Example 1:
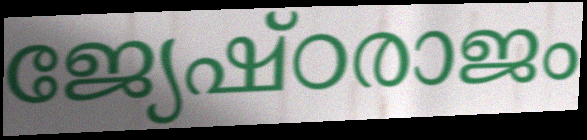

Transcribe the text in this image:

ജ്യേഷ്ഠരാജം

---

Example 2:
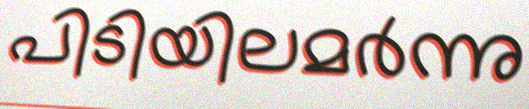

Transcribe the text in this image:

പിടിയിലമർന്നു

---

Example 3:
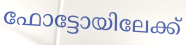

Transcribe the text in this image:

ഫോട്ടോയിലേക്ക്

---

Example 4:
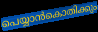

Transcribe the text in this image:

പെയ്യാൻകൊതിക്കും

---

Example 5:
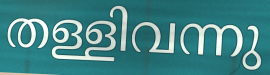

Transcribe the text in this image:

തള്ളിവന്നു